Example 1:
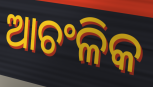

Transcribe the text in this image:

ଆଚଂଳିକ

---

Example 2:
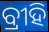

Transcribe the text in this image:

ବ୍ରୀହି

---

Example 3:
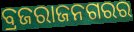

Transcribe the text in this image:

ବ୍ରଜରାଜନଗରର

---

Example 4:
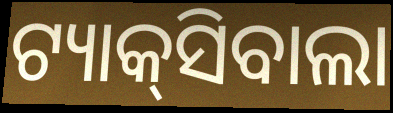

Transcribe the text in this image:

ଟ୍ୟାକ୍‌ସିବାଲା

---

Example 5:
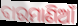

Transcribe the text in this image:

ବାରମାଣିଆଁ